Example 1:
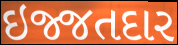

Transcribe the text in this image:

ઇજ્જતદાર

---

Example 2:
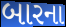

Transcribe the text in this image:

બારના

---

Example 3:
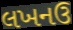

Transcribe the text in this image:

લખનઉ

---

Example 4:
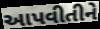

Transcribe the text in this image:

આપવીતીને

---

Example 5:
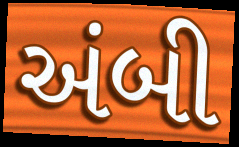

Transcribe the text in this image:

અંબી